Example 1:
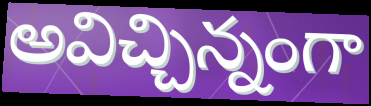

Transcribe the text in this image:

అవిచ్చిన్నంగా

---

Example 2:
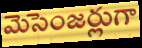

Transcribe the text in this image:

మెసెంజర్లుగా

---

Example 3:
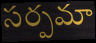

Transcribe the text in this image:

సర్పమా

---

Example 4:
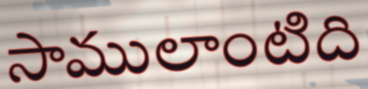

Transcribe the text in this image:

సాములాంటిది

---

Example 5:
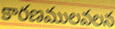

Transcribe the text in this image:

కారణములవలన